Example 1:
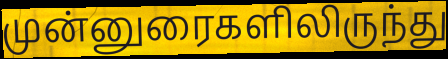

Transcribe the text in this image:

முன்னுரைகளிலிருந்து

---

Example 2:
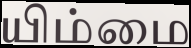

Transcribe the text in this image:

யிம்மை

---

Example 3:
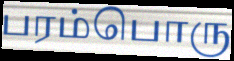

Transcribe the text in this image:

பரம்பொரு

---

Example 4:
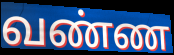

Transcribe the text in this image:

வண்ண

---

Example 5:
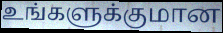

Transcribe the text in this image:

உங்களுக்குமான